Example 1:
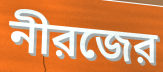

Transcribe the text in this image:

নীরজের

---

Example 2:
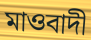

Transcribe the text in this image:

মাওবাদী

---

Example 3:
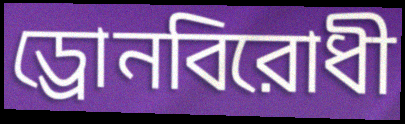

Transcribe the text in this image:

ড্রোনবিরোধী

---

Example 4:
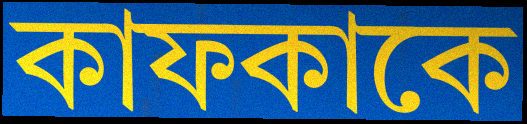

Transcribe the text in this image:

কাফকাকে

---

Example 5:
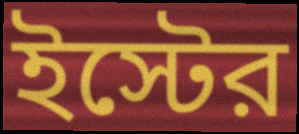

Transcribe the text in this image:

ইস্টের